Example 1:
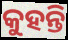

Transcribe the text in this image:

କୁହନ୍ତି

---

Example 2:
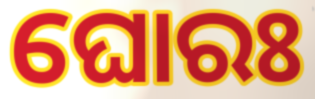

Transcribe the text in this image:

ଘୋରଃ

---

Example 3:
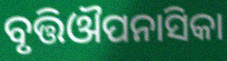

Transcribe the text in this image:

ବୃତ୍ତିଔପନାସିକା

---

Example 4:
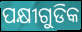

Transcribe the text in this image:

ପକ୍ଷୀଗୁଡିକ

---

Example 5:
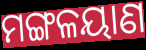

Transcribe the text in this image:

ମଙ୍ଗଳୟାଣ